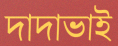
দাদাভাই